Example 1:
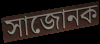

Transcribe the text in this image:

সাজোনক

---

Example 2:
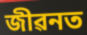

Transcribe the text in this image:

জীৱনত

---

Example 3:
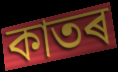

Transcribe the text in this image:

কাতৰ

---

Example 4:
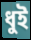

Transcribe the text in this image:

ধুই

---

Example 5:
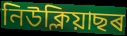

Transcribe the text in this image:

নিউক্লিয়াছৰ